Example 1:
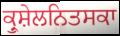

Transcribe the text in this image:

ਕ੍ਰੁਸ਼ੇਲਨਿਤਸਕਾ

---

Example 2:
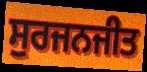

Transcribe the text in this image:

ਸੁਰਜਨਜੀਤ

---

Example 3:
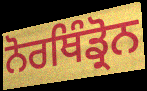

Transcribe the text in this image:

ਨੋਰਥਿੰਡ੍ਰੋਨ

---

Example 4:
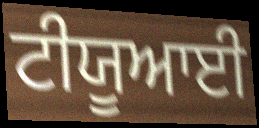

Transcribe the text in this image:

ਟੀਯੂਆਈ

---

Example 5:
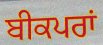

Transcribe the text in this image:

ਬੀਕਪਰਾਂ